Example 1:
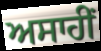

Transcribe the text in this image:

ਅਸਾਹੀਂ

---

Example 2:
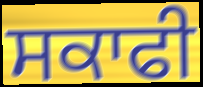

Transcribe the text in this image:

ਸਕਾਫੀ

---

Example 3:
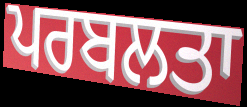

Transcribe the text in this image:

ਪਰਬਲਤਾ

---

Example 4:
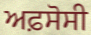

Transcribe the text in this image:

ਅਫ਼ਸੋਸੀ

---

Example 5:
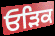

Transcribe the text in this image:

ਓੜਿਕ